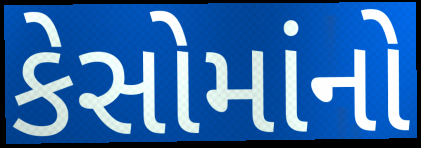
કેસોમાંનો